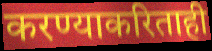
करण्याकरिताही